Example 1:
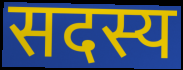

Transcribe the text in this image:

सदस्य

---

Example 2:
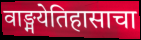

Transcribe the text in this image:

वाङ्मयेतिहासाचा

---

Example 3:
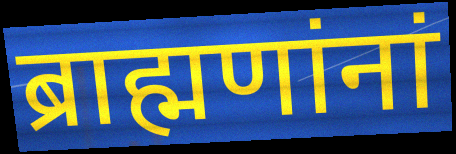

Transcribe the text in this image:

ब्राह्मणांनां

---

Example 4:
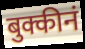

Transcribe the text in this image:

बुक्कीनं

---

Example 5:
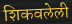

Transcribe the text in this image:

शिकवलेली